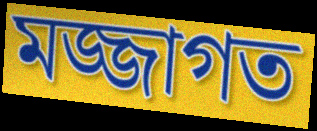
মজ্জাগত